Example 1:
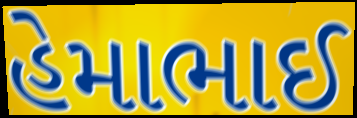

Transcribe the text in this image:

હેમાભાઈ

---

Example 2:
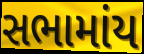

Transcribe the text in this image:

સભામાંય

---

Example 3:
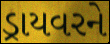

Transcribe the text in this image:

ડ્રાયવરને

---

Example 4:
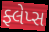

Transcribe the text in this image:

ફ્લેપ્સ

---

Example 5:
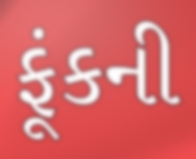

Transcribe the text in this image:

ફૂંકની